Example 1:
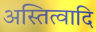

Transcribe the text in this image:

अस्तित्वादि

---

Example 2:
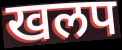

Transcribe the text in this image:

खलप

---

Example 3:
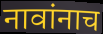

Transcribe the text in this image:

नावांनाच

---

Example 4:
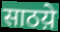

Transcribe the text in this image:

साठय़े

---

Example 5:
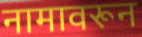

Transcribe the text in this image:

नामावरून